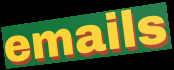
emails